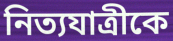
নিত্যযাত্রীকে